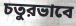
চতুরভাবে